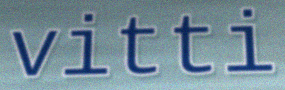
vitti